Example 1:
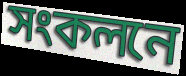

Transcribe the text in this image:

সংকলনে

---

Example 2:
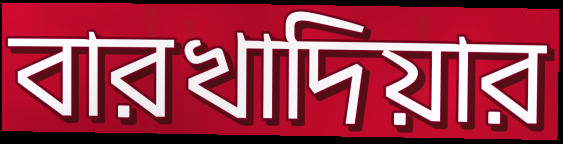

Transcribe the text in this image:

বারখাদিয়ার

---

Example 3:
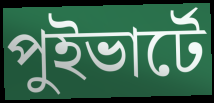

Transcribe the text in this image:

পুইভার্টে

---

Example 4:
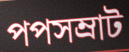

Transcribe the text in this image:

পপসম্রাট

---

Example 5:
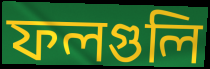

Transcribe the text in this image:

ফলগুলি